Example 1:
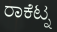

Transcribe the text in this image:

ರಾಕೆಟ್ನ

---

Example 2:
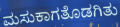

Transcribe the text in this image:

ಮಸುಕಾಗತೊಡಗಿತು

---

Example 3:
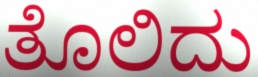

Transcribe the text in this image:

ತೊಲಿದು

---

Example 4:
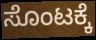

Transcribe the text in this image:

ಸೊಂಟಕ್ಕೆ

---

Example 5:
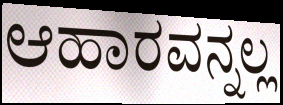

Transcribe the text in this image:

ಆಹಾರವನ್ನಲ್ಲ